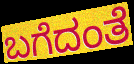
ಬಗೆದಂತೆ